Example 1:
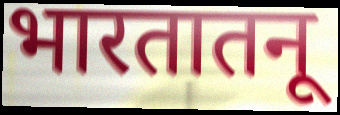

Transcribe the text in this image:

भारतातनू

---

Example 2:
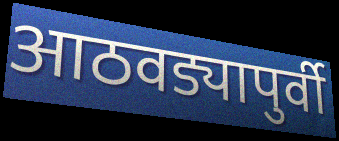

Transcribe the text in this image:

आठवड्यापुर्वी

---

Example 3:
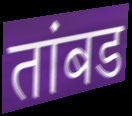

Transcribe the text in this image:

तांबड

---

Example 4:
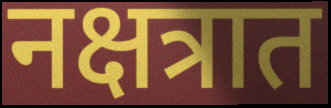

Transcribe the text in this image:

नक्षत्रात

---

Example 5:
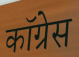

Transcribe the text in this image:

कॉग्रेस